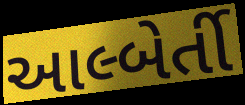
આલ્બેર્તી